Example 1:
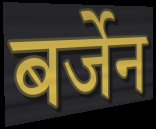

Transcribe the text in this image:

बर्जेन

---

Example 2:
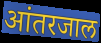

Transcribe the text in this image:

आंतरजाल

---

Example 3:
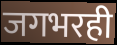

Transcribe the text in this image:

जगभरही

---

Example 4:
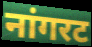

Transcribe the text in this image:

नांगरट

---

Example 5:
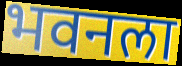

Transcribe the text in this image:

भवनला